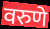
वरुणे